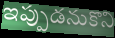
ఇప్పుడనుకొని